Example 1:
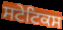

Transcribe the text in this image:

ਸਟੇਟਿਕਸ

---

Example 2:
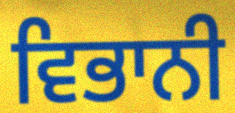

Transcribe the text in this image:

ਵਿਭਾਨੀ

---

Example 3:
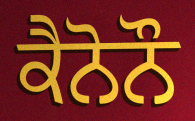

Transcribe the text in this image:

ਕੈਨੋਨੌ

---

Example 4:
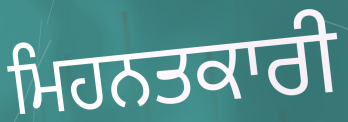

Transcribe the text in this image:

ਮਿਹਨਤਕਾਰੀ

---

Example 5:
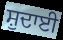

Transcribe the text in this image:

ਸ਼ੁਦਾਈ